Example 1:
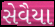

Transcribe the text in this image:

સેવૈયા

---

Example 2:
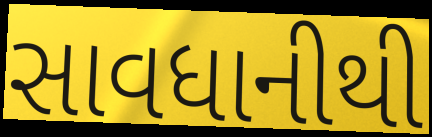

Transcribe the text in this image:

સાવધાનીથી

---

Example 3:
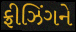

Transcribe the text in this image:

ફ્રીઝિંગને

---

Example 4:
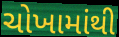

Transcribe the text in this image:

ચોખામાંથી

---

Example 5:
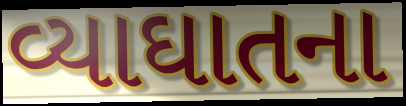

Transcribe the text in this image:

વ્યાઘાતના